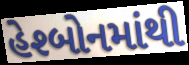
હેશ્બોનમાંથી